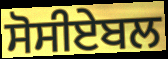
ਸੋਸੀਏਬਲ